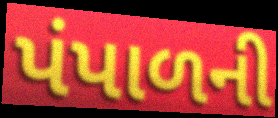
પંપાળની